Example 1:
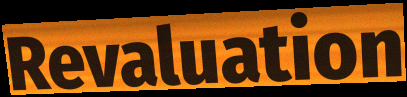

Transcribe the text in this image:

Revaluation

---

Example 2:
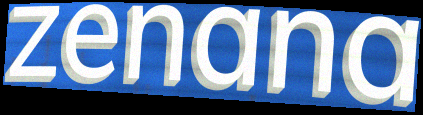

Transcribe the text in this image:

zenana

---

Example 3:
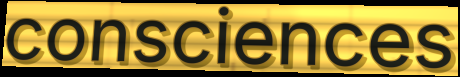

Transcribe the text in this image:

consciences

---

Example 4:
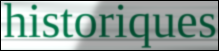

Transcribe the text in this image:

historiques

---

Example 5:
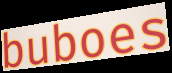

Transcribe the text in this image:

buboes